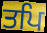
ਤਪਿ